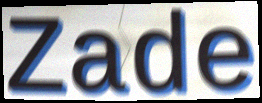
Zade